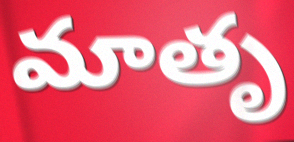
మాతృ